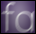
fa